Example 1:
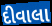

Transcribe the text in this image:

દીવાલા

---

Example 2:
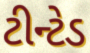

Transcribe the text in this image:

ટીન્ટેડ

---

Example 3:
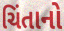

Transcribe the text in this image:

ચિંતાનો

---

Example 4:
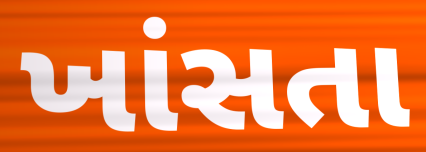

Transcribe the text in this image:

ખાંસતા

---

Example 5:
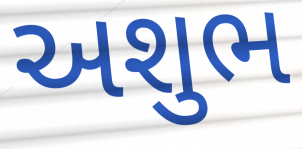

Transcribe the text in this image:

અશુભ